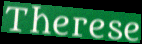
Therese